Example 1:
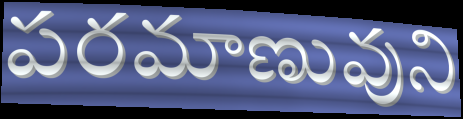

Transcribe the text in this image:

పరమాణువుని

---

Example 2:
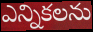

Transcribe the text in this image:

ఎన్నికలను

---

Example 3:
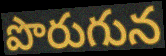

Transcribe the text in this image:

పొరుగున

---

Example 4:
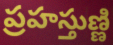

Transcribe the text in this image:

ప్రహస్తుణ్ణి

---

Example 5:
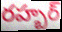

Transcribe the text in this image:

రహ్బర్